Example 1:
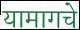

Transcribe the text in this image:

यामागचे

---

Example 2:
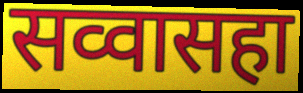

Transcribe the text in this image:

सव्वासहा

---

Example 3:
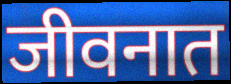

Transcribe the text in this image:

जीवनात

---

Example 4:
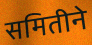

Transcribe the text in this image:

समितीने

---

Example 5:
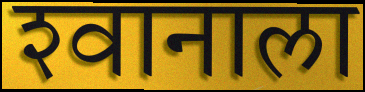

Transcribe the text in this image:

श्वानाला